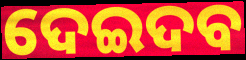
ଦେଇଦବ